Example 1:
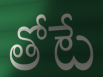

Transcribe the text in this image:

తోటే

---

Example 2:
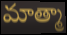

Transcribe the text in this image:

మాత్మా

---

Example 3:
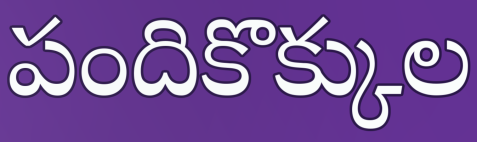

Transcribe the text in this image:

పందికొక్కుల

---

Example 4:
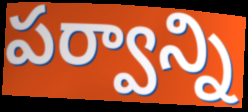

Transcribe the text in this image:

పర్వాన్ని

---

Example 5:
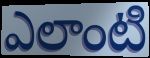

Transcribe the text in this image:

ఎలాంటి